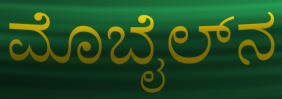
ಮೊಬೈಲ್‌ನ